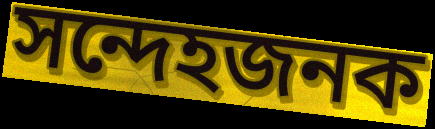
সন্দেহজনক